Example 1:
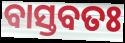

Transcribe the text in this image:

ବାସ୍ତବତଃ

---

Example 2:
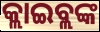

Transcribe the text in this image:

କ୍ଲାଇବ୍ଲଙ୍କ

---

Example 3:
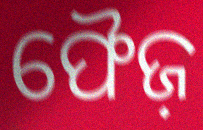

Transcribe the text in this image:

ଫୈଜ଼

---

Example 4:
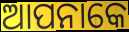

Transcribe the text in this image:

ଆପନାକେ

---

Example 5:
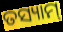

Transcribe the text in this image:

ତସ୍ୟାମ୍